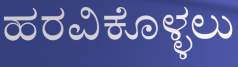
ಹರವಿಕೊಳ್ಳಲು